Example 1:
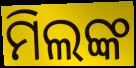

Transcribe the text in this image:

ମିଲଙ୍କ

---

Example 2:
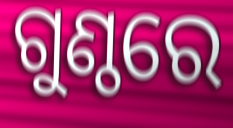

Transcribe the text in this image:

ଗୁଣ୍ଠରେ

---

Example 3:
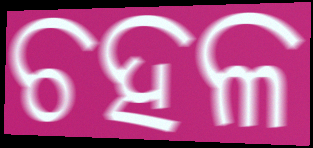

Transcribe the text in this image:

ଚହଳ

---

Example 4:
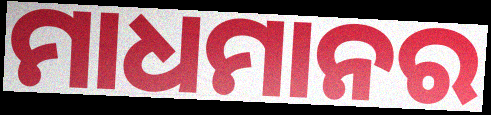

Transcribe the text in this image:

ମାଧମାନର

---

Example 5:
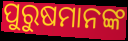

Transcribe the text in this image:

ପୁରୁଷମାନଙ୍କ